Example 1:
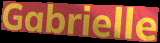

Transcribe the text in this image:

Gabrielle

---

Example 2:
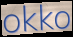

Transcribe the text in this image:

okko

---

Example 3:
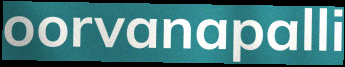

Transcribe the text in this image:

oorvanapalli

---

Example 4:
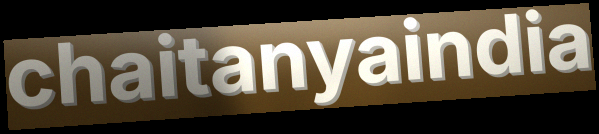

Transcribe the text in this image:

chaitanyaindia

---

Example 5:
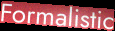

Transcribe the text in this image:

Formalistic